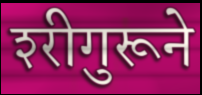
श्रीगुरूने